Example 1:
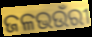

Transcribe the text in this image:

ଜଳଭଉଁରୀ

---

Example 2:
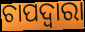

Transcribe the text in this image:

ଚାପଦ୍ବାରା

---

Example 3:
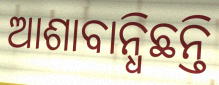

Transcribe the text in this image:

ଆଶାବାନ୍ଧିଛନ୍ତି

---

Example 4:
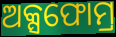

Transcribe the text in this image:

ଅକ୍ସଫୋମ୍ର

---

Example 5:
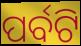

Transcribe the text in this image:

ପର୍ବଟି